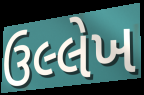
ઉલ્લેખ